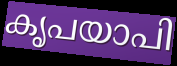
കൃപയാപി